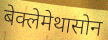
बेक्लेमेथासोन